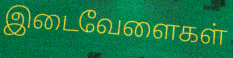
இடைவேளைகள்